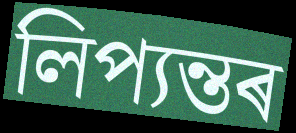
লিপ্যন্তৰ